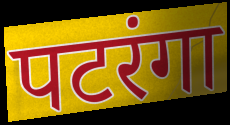
पटरंगा